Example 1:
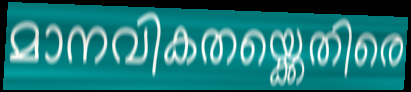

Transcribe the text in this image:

മാനവികതയ്ക്കെതിരെ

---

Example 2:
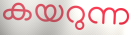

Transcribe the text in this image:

കയറുന്ന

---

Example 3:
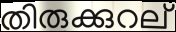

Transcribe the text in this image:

തിരുക്കുറല്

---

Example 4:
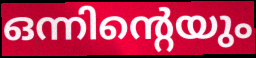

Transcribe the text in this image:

ഒന്നിന്റെയും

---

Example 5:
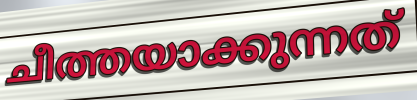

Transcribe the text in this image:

ചീത്തയാക്കുന്നത്